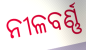
ନୀଳବର୍ଣ୍ଣ